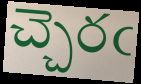
చ్చెరఁ